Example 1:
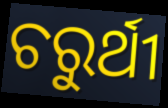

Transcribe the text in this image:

ଚରୁର୍ଥୀ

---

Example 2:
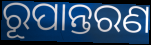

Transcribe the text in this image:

ରୂପାନ୍ତରଣ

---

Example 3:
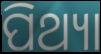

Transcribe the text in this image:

ପିଥ୍ୟା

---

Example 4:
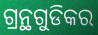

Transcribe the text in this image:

ଗ୍ରନ୍ଥଗୁଡିକର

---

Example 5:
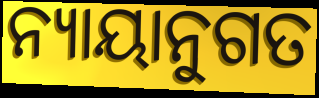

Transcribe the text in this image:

ନ୍ୟାୟାନୁଗତ